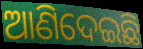
ଆଣିଦେଇଛି